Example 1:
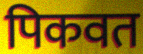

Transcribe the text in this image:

पिकवत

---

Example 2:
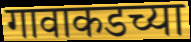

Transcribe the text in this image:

गावाकडच्या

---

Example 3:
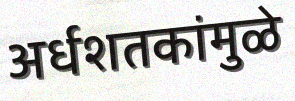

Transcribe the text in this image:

अर्धशतकांमुळे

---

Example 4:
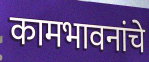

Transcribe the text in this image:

कामभावनांचे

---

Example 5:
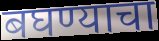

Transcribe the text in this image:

बघण्याचा